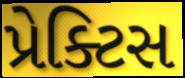
પ્રેક્ટિસ